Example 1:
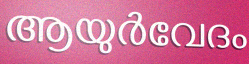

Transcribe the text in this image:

ആയുർവേദം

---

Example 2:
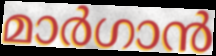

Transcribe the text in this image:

മാർഗാൻ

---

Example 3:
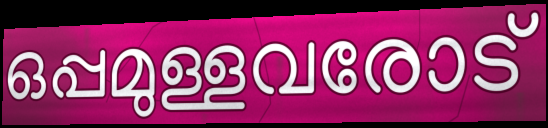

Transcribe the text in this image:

ഒപ്പമുള്ളവരോട്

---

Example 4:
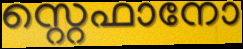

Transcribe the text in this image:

സ്റ്റെഫാനോ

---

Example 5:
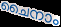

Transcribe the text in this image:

ചൈനാം